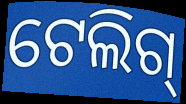
ଟେଲିଗ୍